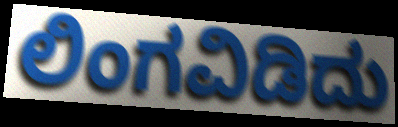
ಲಿಂಗವಿಡಿದು